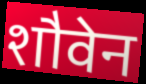
शौवेन